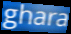
ghara